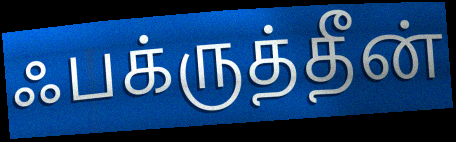
ஃபக்ருத்தீன்